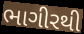
ભાગીરથી